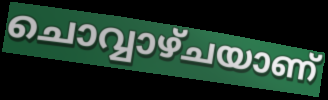
ചൊവ്വാഴ്ചയാണ്